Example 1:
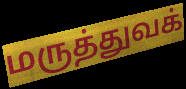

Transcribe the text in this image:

மருத்துவக்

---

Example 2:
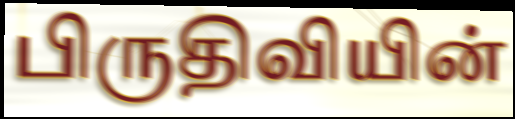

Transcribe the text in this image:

பிருதிவியின்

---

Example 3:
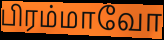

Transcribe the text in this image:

பிரம்மாவோ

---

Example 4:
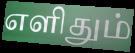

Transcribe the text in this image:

எளிதும்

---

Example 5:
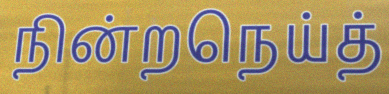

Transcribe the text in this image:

நின்றநெய்த்